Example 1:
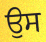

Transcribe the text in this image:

ਉਸ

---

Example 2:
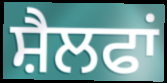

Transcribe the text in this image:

ਸ਼ੈਲਫਾਂ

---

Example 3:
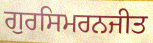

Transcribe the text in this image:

ਗੁਰਸਿਮਰਨਜੀਤ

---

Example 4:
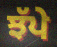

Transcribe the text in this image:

ਝੱਪੇ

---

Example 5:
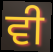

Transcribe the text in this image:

ਵੀ